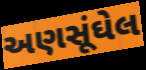
અણસૂંઘેલ